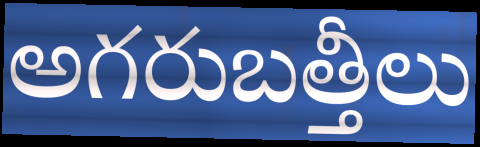
అగరుబత్తీలు